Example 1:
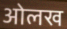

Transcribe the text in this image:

ओलख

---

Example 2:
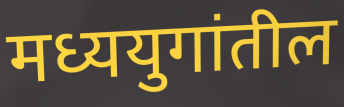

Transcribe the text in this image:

मध्ययुगांतील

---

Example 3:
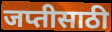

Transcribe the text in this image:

जप्तीसाठी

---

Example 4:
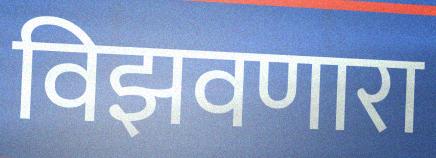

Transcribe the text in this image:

विझवणारा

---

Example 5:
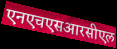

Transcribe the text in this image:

एनएचएसआरसीएल